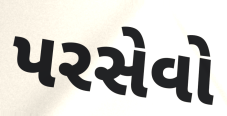
પરસેવો